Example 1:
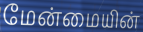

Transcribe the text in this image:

மேன்மையின்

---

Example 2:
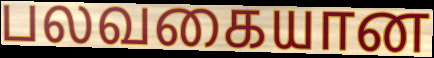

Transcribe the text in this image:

பலவகையான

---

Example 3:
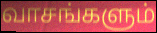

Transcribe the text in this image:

வாசங்களும்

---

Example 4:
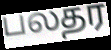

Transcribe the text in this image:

பலதர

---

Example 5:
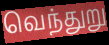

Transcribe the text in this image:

வெந்துறு